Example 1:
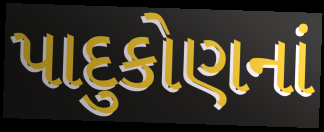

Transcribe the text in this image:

પાદુકોણનાં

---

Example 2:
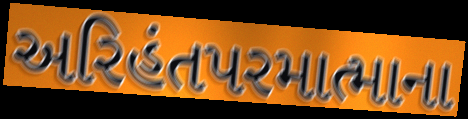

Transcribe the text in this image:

અરિહંતપરમાત્માના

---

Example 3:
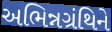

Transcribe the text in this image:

અભિન્નગ્રંથિને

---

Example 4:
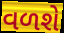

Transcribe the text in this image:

વળશે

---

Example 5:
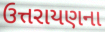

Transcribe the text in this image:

ઉત્તરાયણના